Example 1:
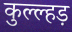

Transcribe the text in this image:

कुल्ल्हड़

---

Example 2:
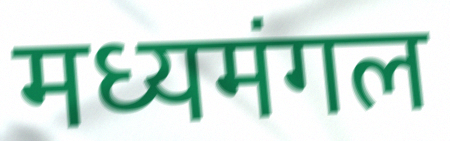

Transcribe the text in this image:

मध्यमंगल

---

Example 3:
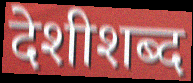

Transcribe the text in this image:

देशीशब्द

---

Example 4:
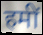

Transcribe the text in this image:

हमीं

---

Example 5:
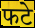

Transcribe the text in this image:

फटे